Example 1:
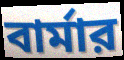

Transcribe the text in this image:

বার্মার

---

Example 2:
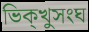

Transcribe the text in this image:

ভিক্খুসংঘ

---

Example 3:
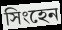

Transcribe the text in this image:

সিংহেন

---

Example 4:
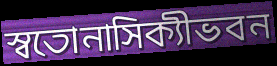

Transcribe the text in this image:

স্বতোনাসিক্যীভবন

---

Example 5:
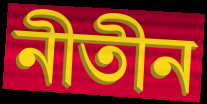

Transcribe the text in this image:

নীতীন